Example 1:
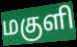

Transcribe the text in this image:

மகுளி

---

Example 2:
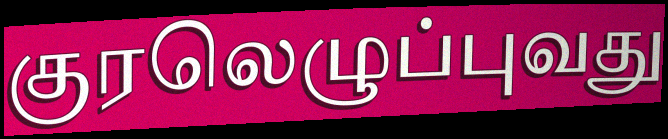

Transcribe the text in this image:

குரலெழுப்புவது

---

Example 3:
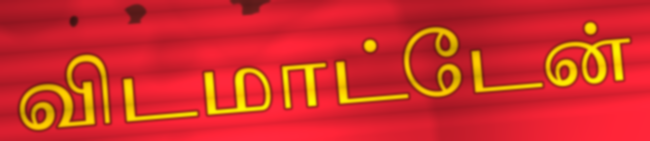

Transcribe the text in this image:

விடமாட்டேன்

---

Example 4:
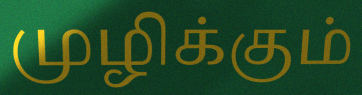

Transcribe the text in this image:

முழிக்கும்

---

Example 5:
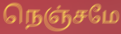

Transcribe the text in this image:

நெஞ்சமே